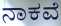
ನಾಕವೆ